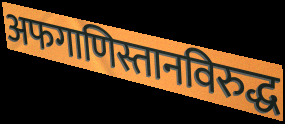
अफगाणिस्तानविरुद्ध